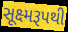
સૂક્ષ્મરૂપથી